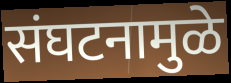
संघटनामुळे